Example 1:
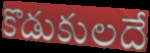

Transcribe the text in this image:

కొడుకులదే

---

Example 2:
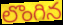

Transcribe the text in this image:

లొంగిన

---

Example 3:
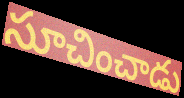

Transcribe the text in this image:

సూచించాడు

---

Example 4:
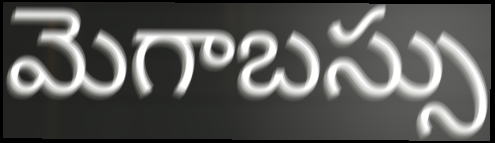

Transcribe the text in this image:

మెగాబస్సు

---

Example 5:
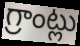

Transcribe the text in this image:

గ్రాంట్లు